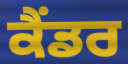
ਕੈਂਡਰ